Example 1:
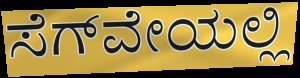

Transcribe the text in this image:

ಸೆಗ್‌ವೇಯಲ್ಲಿ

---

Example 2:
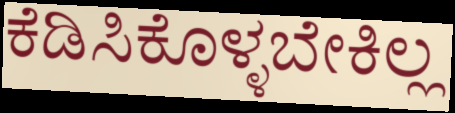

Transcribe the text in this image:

ಕೆಡಿಸಿಕೊಳ್ಳಬೇಕಿಲ್ಲ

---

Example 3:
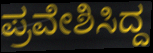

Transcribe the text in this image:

ಪ್ರವೇಶಿಸಿದ್ದ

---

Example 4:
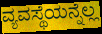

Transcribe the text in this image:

ವ್ಯವಸ್ಥೆಯನ್ನೆಲ್ಲ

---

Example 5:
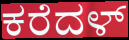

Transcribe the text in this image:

ಕರೆದಳ್